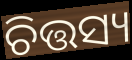
ଚିତ୍ତସ୍ୟ